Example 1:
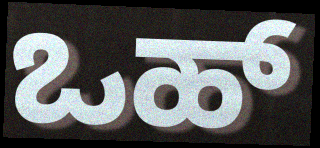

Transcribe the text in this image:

ಒಹ್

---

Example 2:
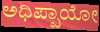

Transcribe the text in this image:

ಅಧಿಪ್ಪಾಯೋ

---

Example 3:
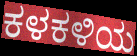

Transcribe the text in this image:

ಕಳಕಳಿಯ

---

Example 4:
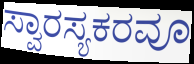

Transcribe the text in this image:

ಸ್ವಾರಸ್ಯಕರವೂ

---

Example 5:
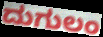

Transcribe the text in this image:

ದುಗುಲಂ